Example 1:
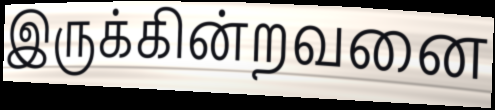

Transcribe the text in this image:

இருக்கின்றவனை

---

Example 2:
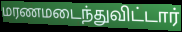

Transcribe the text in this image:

மரணமடைந்துவிட்டார்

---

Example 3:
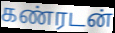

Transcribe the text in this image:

கண்ரடன்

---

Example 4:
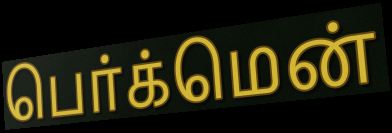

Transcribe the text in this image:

பெர்க்மென்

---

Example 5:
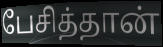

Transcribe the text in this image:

பேசித்தான்